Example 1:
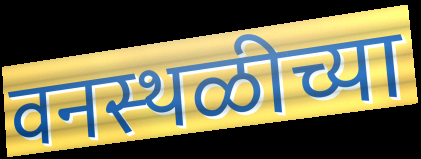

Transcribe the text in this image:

वनस्थळीच्या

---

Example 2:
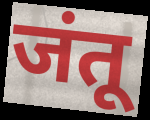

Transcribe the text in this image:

जंतू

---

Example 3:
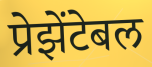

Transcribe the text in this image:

प्रेझेंटेबल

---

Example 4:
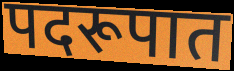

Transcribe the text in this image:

पदरूपात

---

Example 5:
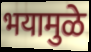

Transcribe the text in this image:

भयामुळे